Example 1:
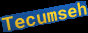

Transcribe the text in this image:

Tecumseh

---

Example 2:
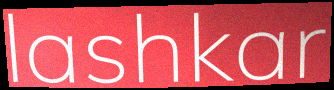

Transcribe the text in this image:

lashkar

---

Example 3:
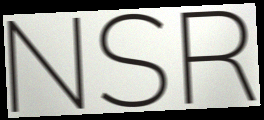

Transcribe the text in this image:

NSR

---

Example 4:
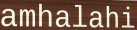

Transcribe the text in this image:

amhalahi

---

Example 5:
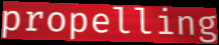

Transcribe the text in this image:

propelling